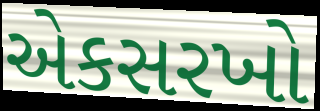
એકસરખો